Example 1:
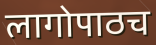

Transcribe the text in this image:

लागोपाठच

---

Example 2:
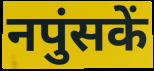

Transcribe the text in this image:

नपुंसकें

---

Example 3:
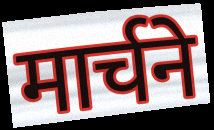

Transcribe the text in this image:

मार्चने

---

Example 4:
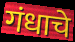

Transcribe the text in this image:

गंधाचे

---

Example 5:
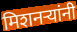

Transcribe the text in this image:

मिशनर्‍यांनी